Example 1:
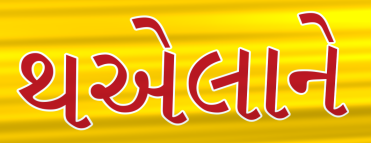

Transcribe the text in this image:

થએલાને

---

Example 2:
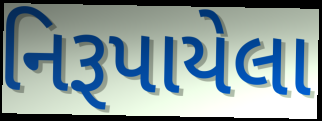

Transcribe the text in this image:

નિરૂપાયેલા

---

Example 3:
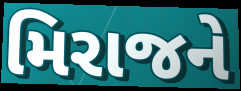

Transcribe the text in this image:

મિરાજને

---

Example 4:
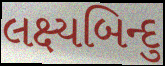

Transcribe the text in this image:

લક્ષ્યબિન્દુ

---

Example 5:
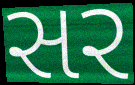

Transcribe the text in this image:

સર